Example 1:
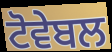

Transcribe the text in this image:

ਟੋਵੇਬਲ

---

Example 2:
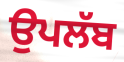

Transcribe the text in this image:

ਉਪਲੱਬ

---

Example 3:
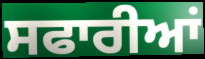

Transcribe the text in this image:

ਸਫਾਰੀਆਂ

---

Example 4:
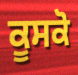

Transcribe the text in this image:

ਕੂਸਕੋ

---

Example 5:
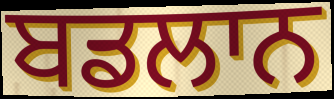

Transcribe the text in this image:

ਬਡਲਾਨ